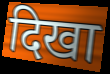
दिखा